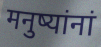
मनुष्यांनां